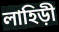
লাহিড়ী